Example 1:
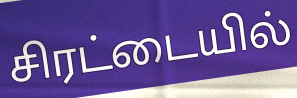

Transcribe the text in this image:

சிரட்டையில்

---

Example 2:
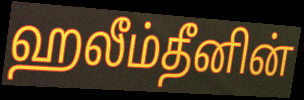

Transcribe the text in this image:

ஹலீம்தீனின்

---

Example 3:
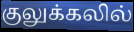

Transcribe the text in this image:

குலுக்கலில்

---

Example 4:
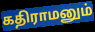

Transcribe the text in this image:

கதிராமனும்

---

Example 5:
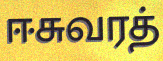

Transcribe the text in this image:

ஈசுவரத்